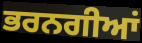
ਭਰਨਗੀਆਂ